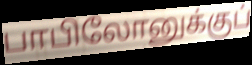
பாபிலோனுக்குப்